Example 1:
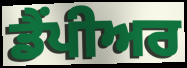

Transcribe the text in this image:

ਡੈਂਪੀਅਰ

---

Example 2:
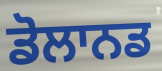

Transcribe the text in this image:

ਡੋਲਾਨਡ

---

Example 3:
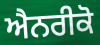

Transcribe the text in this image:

ਐਨਰੀਕੋ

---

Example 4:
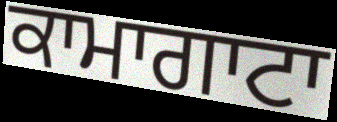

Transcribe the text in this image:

ਕਾਮਾਗਾਟਾ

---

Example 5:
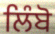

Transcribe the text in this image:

ਲਿੰਬੋ